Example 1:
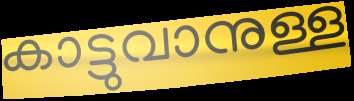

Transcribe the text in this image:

കാട്ടുവാനുള്ള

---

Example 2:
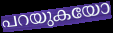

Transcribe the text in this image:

പറയുകയോ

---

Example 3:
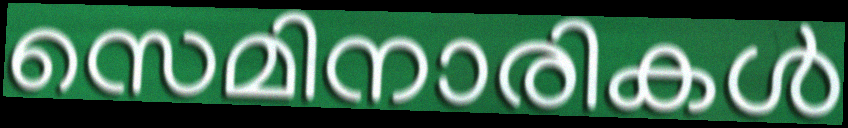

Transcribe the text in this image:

സെമിനാരികൾ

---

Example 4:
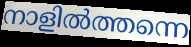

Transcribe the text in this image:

നാളിൽത്തന്നെ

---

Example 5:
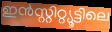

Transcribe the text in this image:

ഇൻസ്റ്റിറ്റ്യൂട്ടിലെ